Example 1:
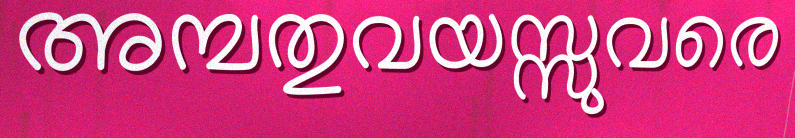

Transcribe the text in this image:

അമ്പതുവയസ്സുവരെ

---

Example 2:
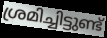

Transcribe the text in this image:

ശ്രമിച്ചിട്ടുണ്ട്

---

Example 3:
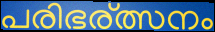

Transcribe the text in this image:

പരിഭര്ത്സനം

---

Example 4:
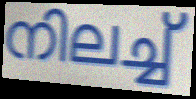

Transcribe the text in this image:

നിലച്ച്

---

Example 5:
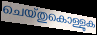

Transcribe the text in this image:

ചെയ്തുകൊള്ളുക